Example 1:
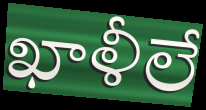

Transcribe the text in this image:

ఖాళీలే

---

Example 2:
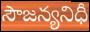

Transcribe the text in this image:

సౌజన్యనిధీ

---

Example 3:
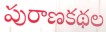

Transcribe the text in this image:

పురాణకథల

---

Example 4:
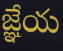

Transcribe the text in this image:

జ్ఞేయ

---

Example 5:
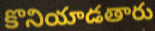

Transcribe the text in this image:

కొనియాడతారు